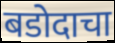
बडोदाचा